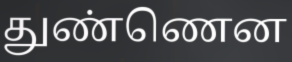
துண்ணென